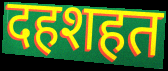
दहशहत